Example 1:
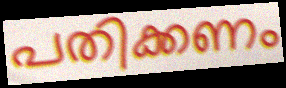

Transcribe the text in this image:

പതിക്കണം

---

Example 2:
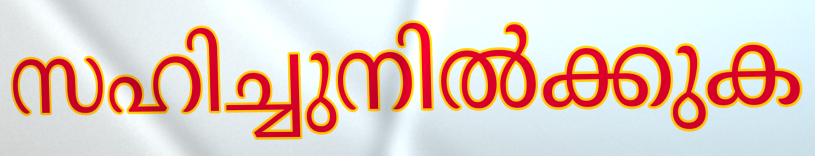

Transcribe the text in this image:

സഹിച്ചുനിൽക്കുക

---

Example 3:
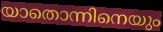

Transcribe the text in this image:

യാതൊന്നിനെയും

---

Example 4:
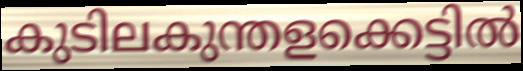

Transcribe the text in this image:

കുടിലകുന്തളക്കെട്ടിൽ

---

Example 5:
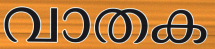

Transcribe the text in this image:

വാതക